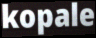
kopale